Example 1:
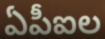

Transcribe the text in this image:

ఏపీఐల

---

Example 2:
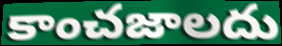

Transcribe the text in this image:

కాంచజాలదు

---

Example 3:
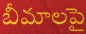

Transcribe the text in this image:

బీమాలపై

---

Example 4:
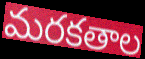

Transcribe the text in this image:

మరకతాల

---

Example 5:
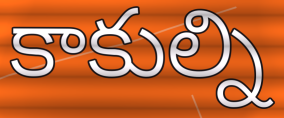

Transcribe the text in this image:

కాకుల్ని